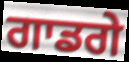
ਗਾਡਗੇ